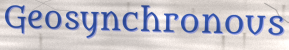
Geosynchronous